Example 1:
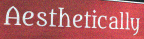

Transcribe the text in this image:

Aesthetically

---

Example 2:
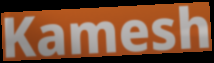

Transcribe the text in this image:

Kamesh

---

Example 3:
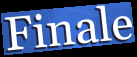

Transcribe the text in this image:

Finale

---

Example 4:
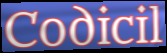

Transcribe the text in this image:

Codicil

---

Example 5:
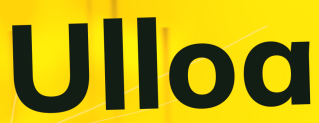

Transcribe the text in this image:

Ulloa